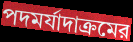
পদমর্যাদাক্রমের